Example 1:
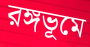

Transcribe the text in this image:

রঙ্গভূমে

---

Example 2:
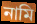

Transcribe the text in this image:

নামি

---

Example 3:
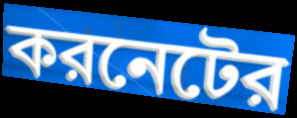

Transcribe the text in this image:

করনেটের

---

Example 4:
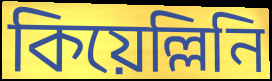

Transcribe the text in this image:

কিয়েল্লিনি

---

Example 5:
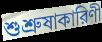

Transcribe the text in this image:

শুশ্রুষাকারিণী